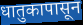
धातुकापासून